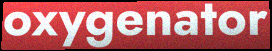
oxygenator